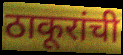
ठाकूरांची